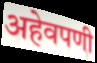
अहेवपणी